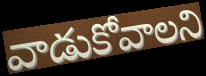
వాడుకోవాలని